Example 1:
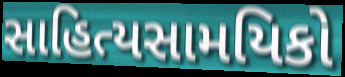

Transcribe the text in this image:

સાહિત્યસામયિકો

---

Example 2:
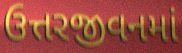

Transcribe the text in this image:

ઉત્તરજીવનમાં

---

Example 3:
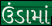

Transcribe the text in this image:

ઉંડામાં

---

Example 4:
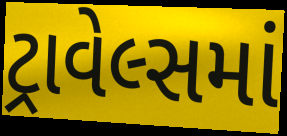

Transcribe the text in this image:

ટ્રાવેલ્સમાં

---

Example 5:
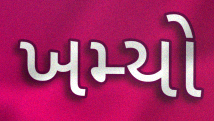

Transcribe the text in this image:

ખમ્યો